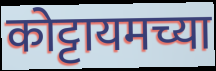
कोट्टायमच्या